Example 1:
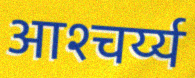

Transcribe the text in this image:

आश्चर्य्य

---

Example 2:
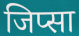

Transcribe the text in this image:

जिप्सा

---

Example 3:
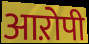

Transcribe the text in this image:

आऱोपी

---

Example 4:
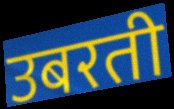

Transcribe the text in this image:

उबरती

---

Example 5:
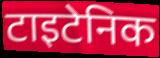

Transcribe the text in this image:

टाइटेनिक